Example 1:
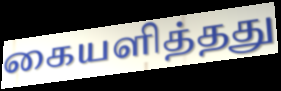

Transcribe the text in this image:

கையளித்தது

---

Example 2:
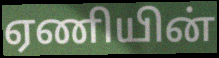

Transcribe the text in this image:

ஏணியின்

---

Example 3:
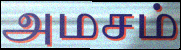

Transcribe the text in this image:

அமசம்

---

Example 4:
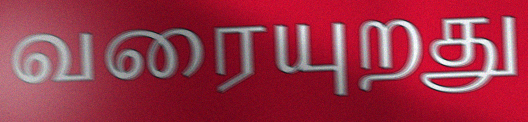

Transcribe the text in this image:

வரையுறது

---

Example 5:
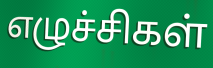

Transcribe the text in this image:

எழுச்சிகள்